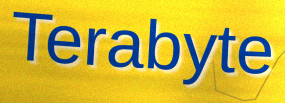
Terabyte